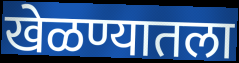
खेळण्यातला